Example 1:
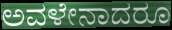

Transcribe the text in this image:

ಅವಳೇನಾದರೂ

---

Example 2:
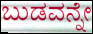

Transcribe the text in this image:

ಬುಡವನ್ನೇ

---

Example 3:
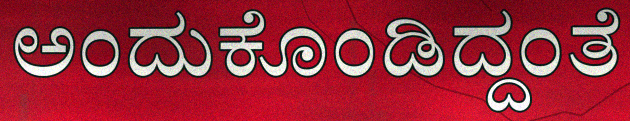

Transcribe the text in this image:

ಅಂದುಕೊಂಡಿದ್ದಂತೆ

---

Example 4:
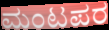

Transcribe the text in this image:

ಮಂಟಪರ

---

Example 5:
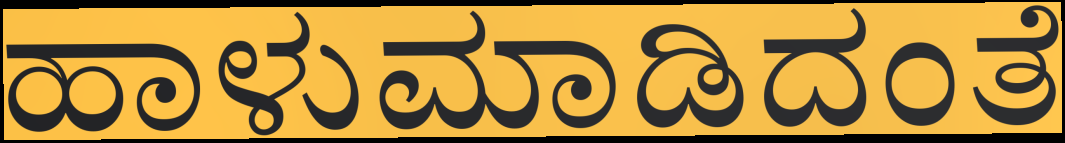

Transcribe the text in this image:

ಹಾಳುಮಾಡಿದಂತೆ